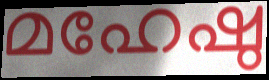
മഹേഷു